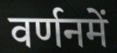
वर्णनमें